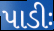
પાડીઃ